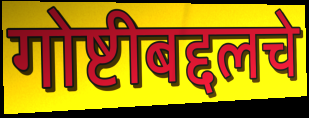
गोष्टीबद्दलचे